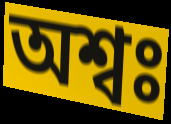
অশ্বঃ